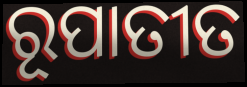
ରୂପାତୀତ